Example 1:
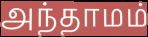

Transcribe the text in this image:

அந்தாமம்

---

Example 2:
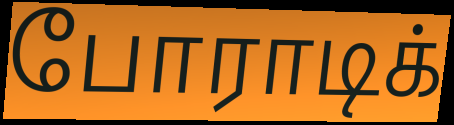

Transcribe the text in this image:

போராடிக்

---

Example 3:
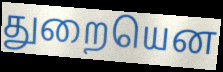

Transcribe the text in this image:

துறையென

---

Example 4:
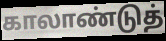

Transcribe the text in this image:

காலாண்டுத்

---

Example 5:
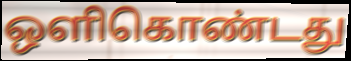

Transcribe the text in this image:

ஒளிகொண்டது